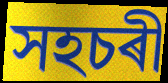
সহচৰী